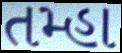
તમ્હા